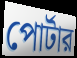
পোর্টার